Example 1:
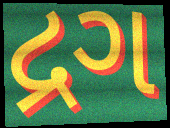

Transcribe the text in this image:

દ્રગ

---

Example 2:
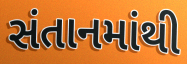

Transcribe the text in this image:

સંતાનમાંથી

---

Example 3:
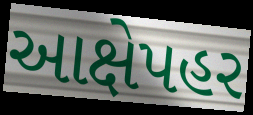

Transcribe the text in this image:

આક્ષેપહર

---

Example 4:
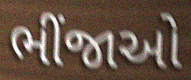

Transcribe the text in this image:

ભીંજાઓ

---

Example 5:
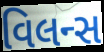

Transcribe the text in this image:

વિલન્સ